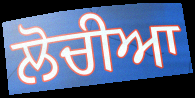
ਲੋਚੀਆ